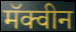
मॅक्वीन